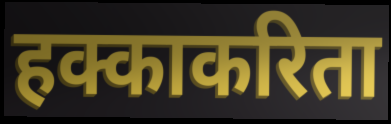
हक्काकरिता